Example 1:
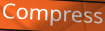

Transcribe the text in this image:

Compress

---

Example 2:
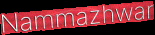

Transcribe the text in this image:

Nammazhwar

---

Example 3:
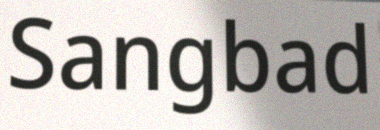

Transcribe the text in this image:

Sangbad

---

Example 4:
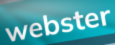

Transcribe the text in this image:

webster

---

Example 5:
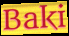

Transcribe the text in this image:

Baki